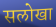
सलोखा